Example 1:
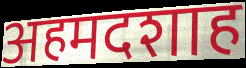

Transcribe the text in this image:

अहमदशाह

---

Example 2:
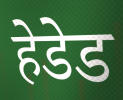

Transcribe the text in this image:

हेडेड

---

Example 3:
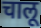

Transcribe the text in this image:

चालू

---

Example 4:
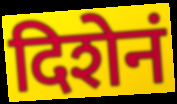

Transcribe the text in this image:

दिशेनं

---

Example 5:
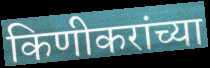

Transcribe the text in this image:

किणीकरांच्या